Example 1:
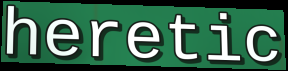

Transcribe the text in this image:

heretic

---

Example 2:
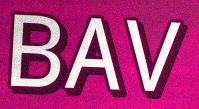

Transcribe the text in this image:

BAV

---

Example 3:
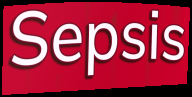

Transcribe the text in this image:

Sepsis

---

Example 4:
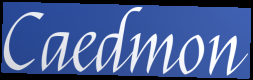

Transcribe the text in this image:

Caedmon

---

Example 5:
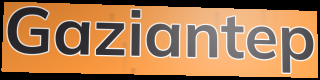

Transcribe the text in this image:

Gaziantep